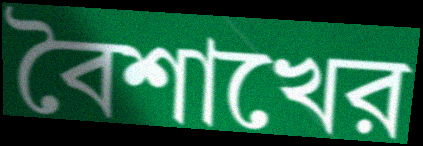
বৈশাখের